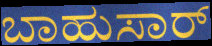
ಬಾಹುಸಾರ್